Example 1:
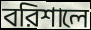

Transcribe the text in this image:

বরিশালে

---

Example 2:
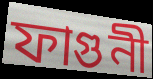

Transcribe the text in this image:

ফাগুনী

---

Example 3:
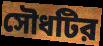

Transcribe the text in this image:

সৌধটির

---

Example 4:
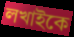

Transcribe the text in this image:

লখাইকে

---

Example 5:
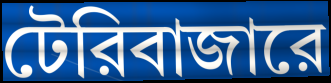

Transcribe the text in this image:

টেরিবাজারে